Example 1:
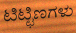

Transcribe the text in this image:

ಟಿಟ್ಟಿಣಗಳು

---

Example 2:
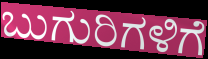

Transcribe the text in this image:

ಬುಗುರಿಗಳಿಗೆ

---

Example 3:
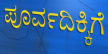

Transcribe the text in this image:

ಪೂರ್ವದಿಕ್ಕಿಗೆ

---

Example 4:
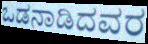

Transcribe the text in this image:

ಒಡನಾಡಿದವರ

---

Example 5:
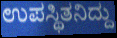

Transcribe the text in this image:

ಉಪಸ್ಥಿತನಿದ್ದು